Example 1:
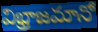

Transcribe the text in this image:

విభ్రాజమానో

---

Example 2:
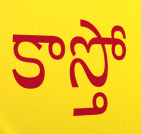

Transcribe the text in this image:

కాస్తో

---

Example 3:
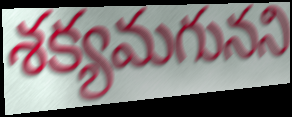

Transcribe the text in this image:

శక్యమగునని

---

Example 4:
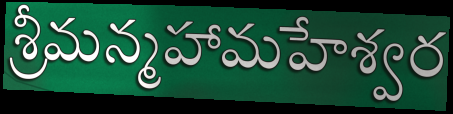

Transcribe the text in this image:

శ్రీమన్మహామహేశ్వర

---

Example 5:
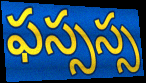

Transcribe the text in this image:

ఫస్సస్స